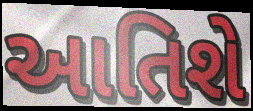
આતિશે